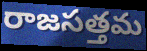
రాజసత్తమ